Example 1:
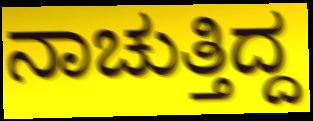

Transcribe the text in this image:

ನಾಚುತ್ತಿದ್ದ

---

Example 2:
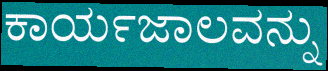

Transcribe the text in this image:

ಕಾರ್ಯಜಾಲವನ್ನು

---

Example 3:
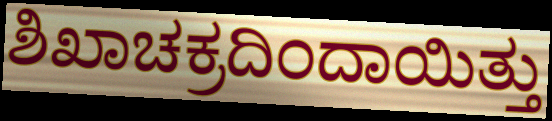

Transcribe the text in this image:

ಶಿಖಾಚಕ್ರದಿಂದಾಯಿತ್ತು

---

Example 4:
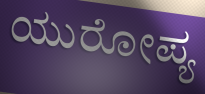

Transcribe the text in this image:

ಯುರೋಪ್ಯ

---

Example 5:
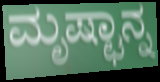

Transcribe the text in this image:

ಮೃಷ್ಟಾನ್ನ